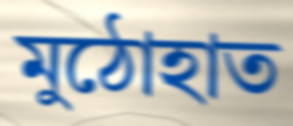
মুঠোহাত